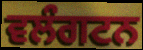
ਵਲੰਗਟਨ